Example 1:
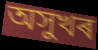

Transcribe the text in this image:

অসুখৰ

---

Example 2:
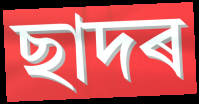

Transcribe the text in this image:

ছাদৰ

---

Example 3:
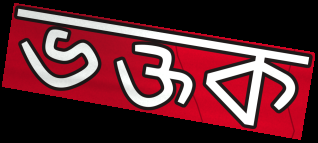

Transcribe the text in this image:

ভক্তক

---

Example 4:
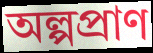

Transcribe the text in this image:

অল্পপ্ৰাণ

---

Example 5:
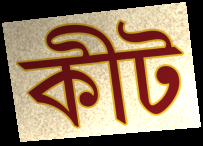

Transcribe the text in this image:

কীট